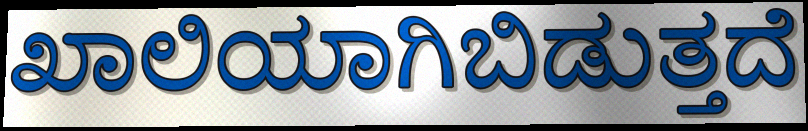
ಖಾಲಿಯಾಗಿಬಿಡುತ್ತದೆ